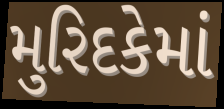
મુરિદકેમાં